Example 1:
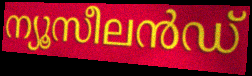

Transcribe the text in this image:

ന്യൂസീലൻഡ്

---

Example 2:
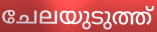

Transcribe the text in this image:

ചേലയുടുത്ത്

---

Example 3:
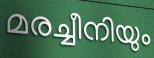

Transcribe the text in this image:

മരച്ചീനിയും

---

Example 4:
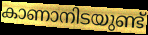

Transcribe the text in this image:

കാണാനിടയുണ്ട്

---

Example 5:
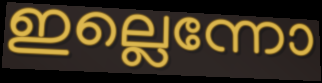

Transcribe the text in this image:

ഇല്ലെന്നോ